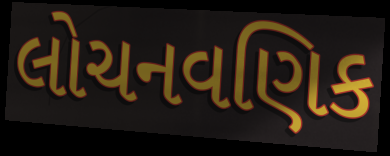
લોચનવણિક